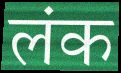
लंक